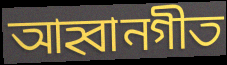
আহ্বানগীত